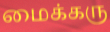
மைக்கரு